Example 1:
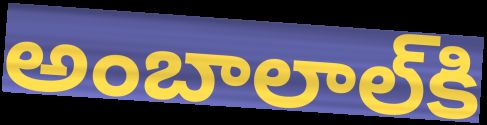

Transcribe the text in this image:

అంబాలాల్‌కి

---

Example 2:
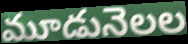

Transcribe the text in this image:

మూడునెలల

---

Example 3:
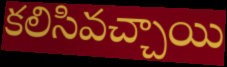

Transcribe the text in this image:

కలిసివచ్చాయి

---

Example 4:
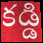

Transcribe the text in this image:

కడ్డి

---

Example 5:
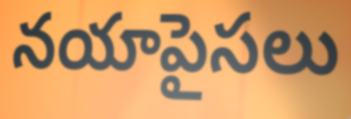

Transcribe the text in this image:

నయాపైసలు